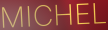
MICHEL